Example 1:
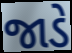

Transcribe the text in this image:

જાડે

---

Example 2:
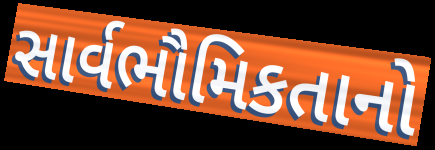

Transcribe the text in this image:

સાર્વભૌમિકતાનો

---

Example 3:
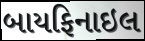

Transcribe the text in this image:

બાયફિનાઇલ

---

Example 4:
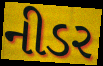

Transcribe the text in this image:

નીડર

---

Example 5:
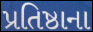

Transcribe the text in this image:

પ્રતિષ્ઠાના